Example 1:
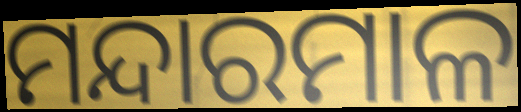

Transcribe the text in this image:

ମନ୍ଦାରମାଳ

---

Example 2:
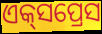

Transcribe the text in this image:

ଏକ୍‍ସପ୍ରେସ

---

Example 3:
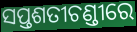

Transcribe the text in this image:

ସପ୍ତଶତୀଚଣ୍ଡୀରେ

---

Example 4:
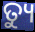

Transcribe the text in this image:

ତ୍ୟୁ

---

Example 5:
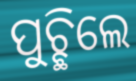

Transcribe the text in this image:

ପୁଚ୍ଛିଲେ